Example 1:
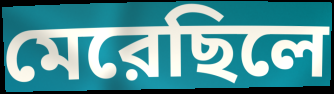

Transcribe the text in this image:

মেরেছিলে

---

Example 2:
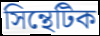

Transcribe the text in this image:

সিন্থেটিক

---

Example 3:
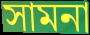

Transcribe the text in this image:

সামনা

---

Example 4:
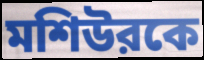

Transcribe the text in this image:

মশিউরকে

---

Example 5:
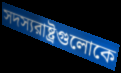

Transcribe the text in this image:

সদস্যরাষ্ট্রগুলোকে